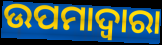
ଉପମାଦ୍ୱାରା